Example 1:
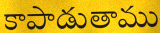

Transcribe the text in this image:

కాపాడుతాము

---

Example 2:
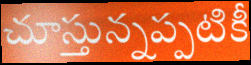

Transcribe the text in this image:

చూస్తున్నప్పటికీ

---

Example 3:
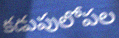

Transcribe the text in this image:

కడుపులోపల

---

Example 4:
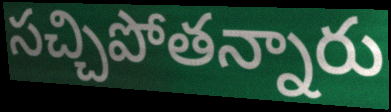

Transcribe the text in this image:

సచ్చిపోతన్నారు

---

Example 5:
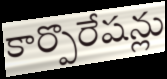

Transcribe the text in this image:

కార్పొరేషన్లు